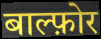
बाल्फ़ोर